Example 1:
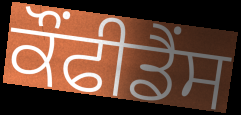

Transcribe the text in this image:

ਕੌਂਫੀਡੈਂਸ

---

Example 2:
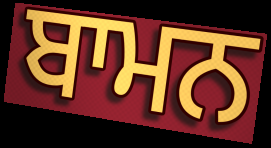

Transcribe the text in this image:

ਬਾਮਨ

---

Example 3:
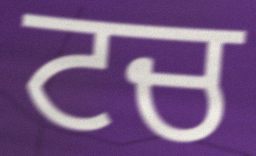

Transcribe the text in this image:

ਟਚ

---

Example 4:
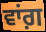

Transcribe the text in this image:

ਵਾਂਗ਼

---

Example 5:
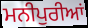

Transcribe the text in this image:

ਮਨੀਪੁਰੀਆਂ